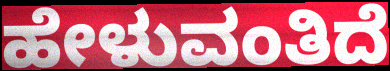
ಹೇಳುವಂತಿದೆ